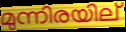
മുന്നിരയില്